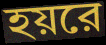
হয়রে